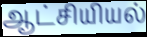
ஆட்சியியல்